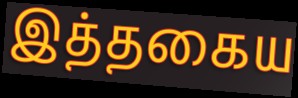
இத்தகைய